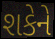
શકેને